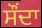
ਸੌਂਦਾ